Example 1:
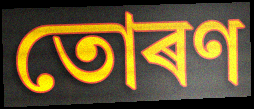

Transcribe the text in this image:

তোৰণ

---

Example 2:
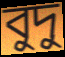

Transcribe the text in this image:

বুদু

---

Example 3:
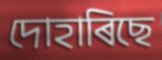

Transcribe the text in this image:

দোহাৰিছে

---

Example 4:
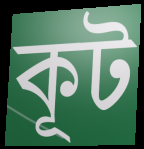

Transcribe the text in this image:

কূট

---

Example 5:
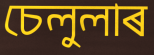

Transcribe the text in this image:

চেলুলাৰ